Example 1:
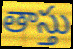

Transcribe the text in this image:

తాస్తు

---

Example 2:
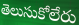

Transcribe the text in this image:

తెలుసుకోలేరు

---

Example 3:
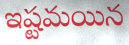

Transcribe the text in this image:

ఇష్టమయిన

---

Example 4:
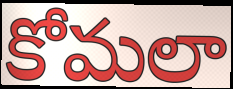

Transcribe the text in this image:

కోమలా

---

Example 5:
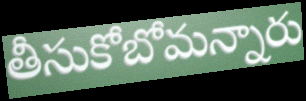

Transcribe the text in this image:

తీసుకోబోమన్నారు